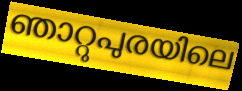
ഞാറ്റുപുരയിലെ